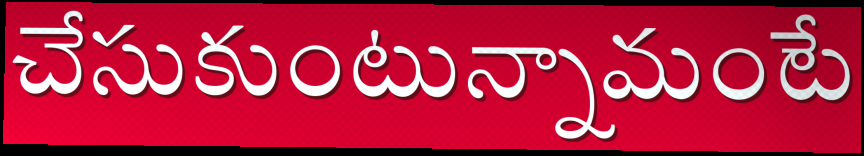
చేసుకుంటున్నామంటే